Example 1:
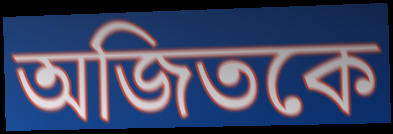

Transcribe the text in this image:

অজিতকে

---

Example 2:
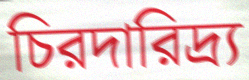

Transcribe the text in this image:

চিরদারিদ্র্য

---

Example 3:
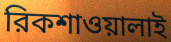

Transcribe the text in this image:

রিকশাওয়ালাই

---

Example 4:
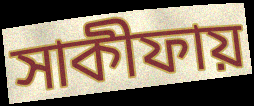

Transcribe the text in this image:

সাকীফায়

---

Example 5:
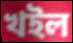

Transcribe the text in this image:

খইল